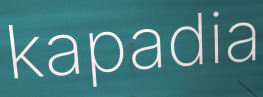
kapadia